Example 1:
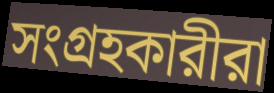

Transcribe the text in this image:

সংগ্রহকারীরা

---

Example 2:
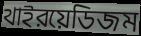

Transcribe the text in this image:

থাইরয়েডিজম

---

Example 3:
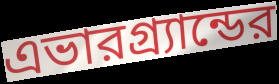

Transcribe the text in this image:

এভারগ্র্যান্ডের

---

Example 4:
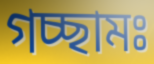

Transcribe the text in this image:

গচ্ছামঃ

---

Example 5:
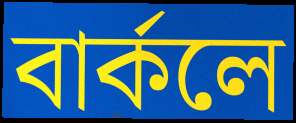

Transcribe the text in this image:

বার্কলে